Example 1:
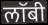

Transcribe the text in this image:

लॉबी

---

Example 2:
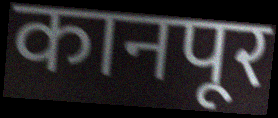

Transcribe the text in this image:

कानपूर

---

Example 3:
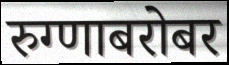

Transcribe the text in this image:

रुग्णाबरोबर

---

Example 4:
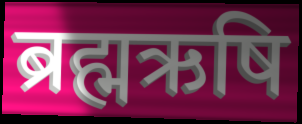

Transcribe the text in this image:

ब्रह्मऋषि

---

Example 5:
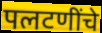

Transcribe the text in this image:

पलटणींचे